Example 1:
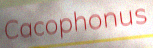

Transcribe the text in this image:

Cacophonus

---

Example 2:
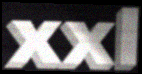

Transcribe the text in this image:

xxl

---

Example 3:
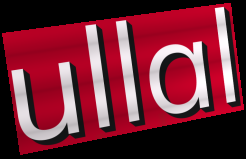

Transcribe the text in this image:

ullal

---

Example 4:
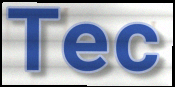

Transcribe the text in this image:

Tec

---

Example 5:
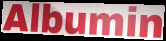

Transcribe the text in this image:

Albumin